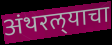
अंथरल्याचा